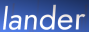
lander